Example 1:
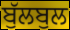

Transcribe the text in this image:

ਬੁੱਲਬੁਲ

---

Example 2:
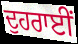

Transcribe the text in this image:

ਦੁਹਰਾਈਂ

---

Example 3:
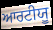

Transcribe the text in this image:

ਆਰਟੀਯੂ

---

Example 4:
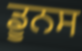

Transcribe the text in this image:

ਡੂਨਸ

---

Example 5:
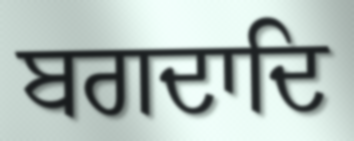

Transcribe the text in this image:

ਬਗਦਾਦਿ